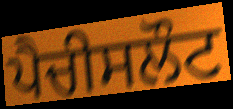
ਪੈਚੀਸਲੌਟ